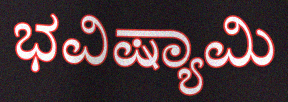
ಭವಿಷ್ಯಾಮಿ